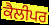
ਕੈਲੀਪਰ